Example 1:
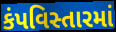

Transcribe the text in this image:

કંપવિસ્તારમાં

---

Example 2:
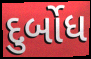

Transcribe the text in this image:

દુર્બોધ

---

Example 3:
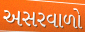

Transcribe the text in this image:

અસરવાળો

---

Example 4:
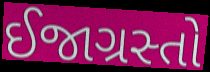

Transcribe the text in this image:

ઈજાગ્રસ્તો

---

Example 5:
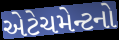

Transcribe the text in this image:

એટેચમેન્ટનો